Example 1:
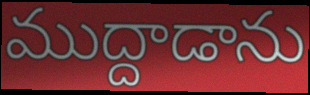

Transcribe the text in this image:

ముద్దాడాను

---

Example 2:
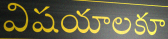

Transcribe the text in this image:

విషయాలకూ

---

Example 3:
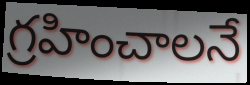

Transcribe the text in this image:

గ్రహించాలనే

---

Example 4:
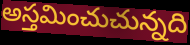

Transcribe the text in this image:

అస్తమించుచున్నది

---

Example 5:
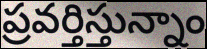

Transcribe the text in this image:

ప్రవర్తిస్తున్నాం